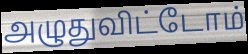
அழுதுவிட்டோம்